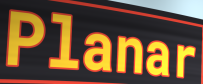
Planar